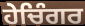
ਹੇਚਿੰਗਰ